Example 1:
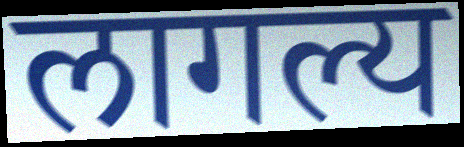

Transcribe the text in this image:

लागल्य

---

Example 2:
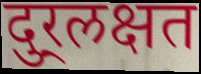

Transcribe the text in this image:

दुर्लक्षत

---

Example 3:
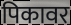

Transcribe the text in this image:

पिकावर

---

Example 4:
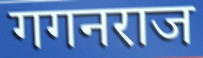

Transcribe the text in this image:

गगनराज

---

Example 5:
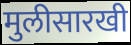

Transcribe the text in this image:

मुलीसारखी